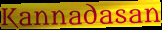
Kannadasan